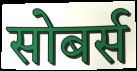
सोबर्स